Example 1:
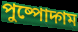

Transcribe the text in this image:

পুষ্পোদ্গম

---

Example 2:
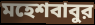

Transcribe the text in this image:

মহেশবাবুর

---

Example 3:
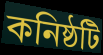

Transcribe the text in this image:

কনিষ্ঠটি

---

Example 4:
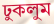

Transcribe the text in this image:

ঢুকলুম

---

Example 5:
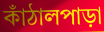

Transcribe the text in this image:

কাঁঠালপাড়া